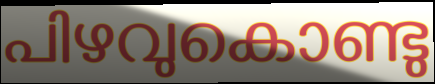
പിഴവുകൊണ്ടു